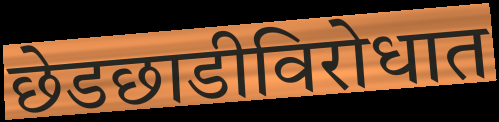
छेडछाडीविरोधात